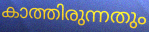
കാത്തിരുന്നതും